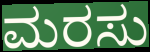
ಮರಸು